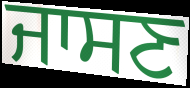
ਜਾਸਣ